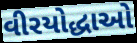
વીરયોદ્ધાઓ